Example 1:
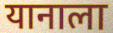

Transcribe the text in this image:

यानाला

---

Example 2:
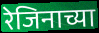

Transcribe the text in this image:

रेजिनाच्या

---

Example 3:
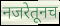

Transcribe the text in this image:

नजरेतूनच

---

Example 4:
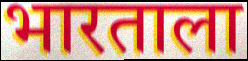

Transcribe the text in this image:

भारताला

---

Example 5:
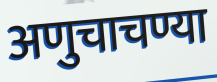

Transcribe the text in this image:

अणुचाचण्या